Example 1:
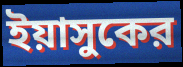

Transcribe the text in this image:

ইয়াসুকের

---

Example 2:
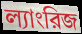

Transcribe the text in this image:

ল্যাংরিজ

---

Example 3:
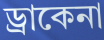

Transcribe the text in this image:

ড্রাকেনা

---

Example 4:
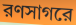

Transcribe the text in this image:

রণসাগরে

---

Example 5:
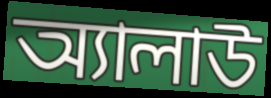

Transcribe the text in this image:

অ্যালাউ